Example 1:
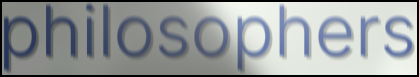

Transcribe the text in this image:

philosophers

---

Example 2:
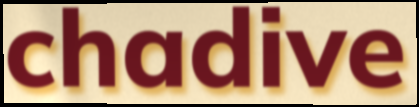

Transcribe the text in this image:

chadive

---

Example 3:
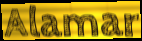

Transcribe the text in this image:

Alamar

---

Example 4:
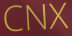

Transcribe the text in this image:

CNX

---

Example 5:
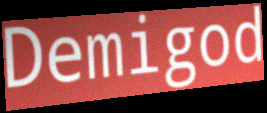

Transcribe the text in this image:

Demigod